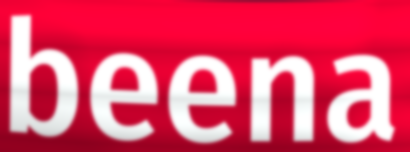
beena